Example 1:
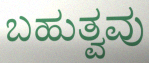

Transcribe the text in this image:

ಬಹುತ್ವವು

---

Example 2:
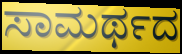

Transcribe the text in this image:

ಸಾಮರ್ಥದ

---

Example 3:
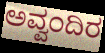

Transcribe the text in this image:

ಅವ್ವಂದಿರ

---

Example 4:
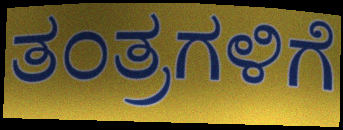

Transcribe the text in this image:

ತಂತ್ರಗಳಿಗೆ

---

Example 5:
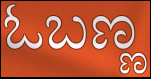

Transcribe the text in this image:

ಓಬಣ್ಣ